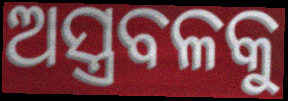
ଅସ୍ତ୍ରବଳକୁ